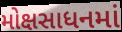
મોક્ષસાધનમાં